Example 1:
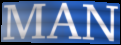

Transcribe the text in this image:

MAN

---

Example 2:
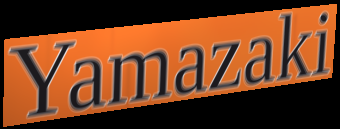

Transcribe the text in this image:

Yamazaki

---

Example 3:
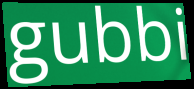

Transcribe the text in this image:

gubbi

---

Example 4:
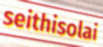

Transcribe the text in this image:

seithisolai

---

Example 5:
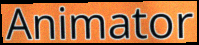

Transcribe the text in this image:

Animator